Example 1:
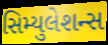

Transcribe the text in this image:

સિમ્યુલેશન્સ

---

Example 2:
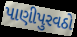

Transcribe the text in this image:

પાણીપુરવઠો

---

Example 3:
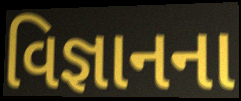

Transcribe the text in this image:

વિજ્ઞાનના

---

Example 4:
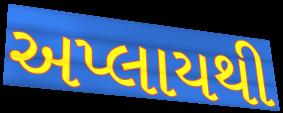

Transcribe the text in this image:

અપ્લાયથી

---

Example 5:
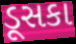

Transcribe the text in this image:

ડૂસકા